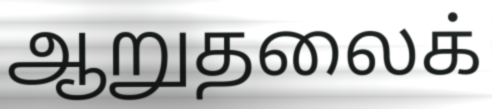
ஆறுதலைக்